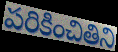
పరికించితిని